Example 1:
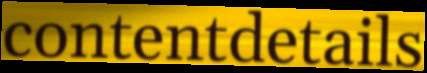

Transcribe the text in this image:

contentdetails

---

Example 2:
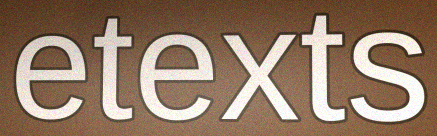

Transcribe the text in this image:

etexts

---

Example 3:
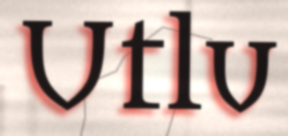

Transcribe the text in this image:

Utlu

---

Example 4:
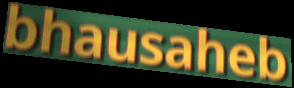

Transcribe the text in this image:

bhausaheb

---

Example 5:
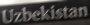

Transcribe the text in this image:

Uzbekistan